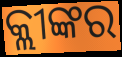
କ୍ଲୀଙ୍କର